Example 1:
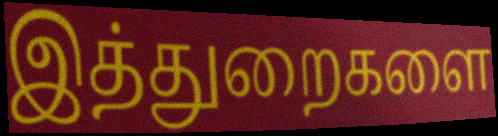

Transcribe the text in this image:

இத்துறைகளை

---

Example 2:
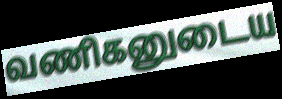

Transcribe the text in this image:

வணிகனுடைய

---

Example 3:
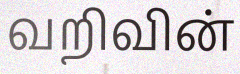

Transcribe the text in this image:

வறிவின்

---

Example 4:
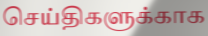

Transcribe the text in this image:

செய்திகளுக்காக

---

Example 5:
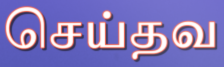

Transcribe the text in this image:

செய்தவ